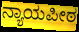
ನ್ಯಾಯಪೀಠ